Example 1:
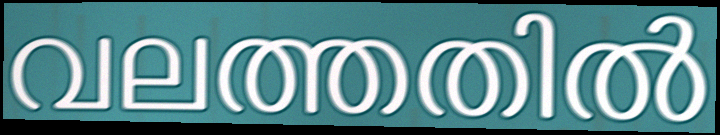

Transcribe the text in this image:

വലത്തതിൽ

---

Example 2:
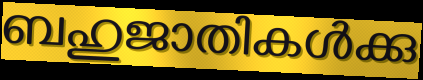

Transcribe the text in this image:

ബഹുജാതികൾക്കു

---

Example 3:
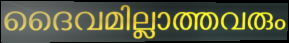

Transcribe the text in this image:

ദൈവമില്ലാത്തവരും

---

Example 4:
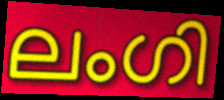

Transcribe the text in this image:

ലംഗി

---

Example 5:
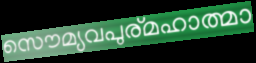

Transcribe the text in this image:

സൌമ്യവപുര്മഹാത്മാ